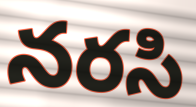
నరసి